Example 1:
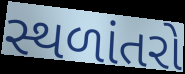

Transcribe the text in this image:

સ્થળાંતરો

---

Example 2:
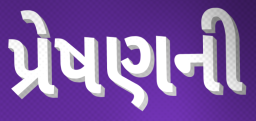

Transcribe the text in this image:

પ્રેષણની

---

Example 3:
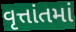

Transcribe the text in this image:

વૃત્તાંતમાં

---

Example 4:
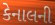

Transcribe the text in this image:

કેનાલની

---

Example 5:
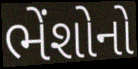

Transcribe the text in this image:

ભેંશોનો